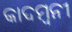
କାଦମ୍ୱନୀ